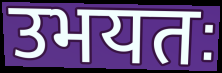
उभयतः